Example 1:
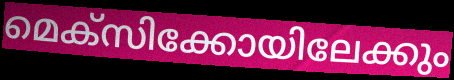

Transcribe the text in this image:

മെക്സിക്കോയിലേക്കും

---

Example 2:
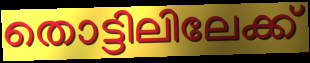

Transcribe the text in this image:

തൊട്ടിലിലേക്ക്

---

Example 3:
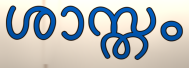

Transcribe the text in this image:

ശാസ്തം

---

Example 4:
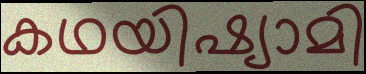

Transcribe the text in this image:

കഥയിഷ്യാമി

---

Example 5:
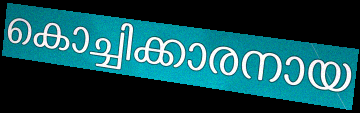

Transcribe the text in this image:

കൊച്ചിക്കാരനായ